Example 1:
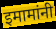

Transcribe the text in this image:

इमामांनी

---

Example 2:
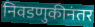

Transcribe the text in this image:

निवडणुकीनंतर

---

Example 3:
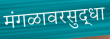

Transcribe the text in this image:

मंगळावरसुद्धा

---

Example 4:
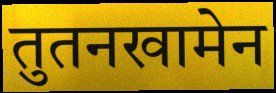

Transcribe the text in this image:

तुतनखामेन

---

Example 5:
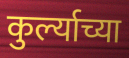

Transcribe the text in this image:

कुर्ल्याच्या